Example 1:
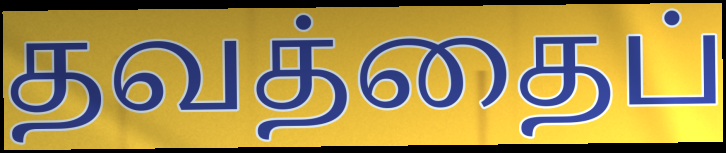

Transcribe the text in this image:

தவத்தைப்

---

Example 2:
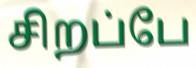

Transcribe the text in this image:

சிறப்பே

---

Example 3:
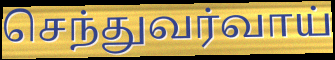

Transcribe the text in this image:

செந்துவர்வாய்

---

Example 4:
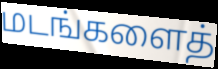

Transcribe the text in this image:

மடங்களைத்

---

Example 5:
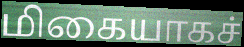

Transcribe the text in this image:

மிகையாகச்